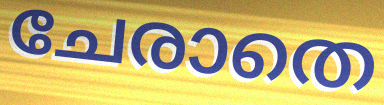
ചേരാതെ